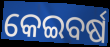
କେଇବର୍ଷ